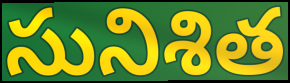
సునిశిత